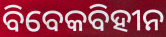
ବିବେକବିହୀନ